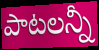
పాటలన్నీ